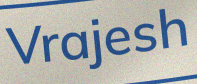
Vrajesh